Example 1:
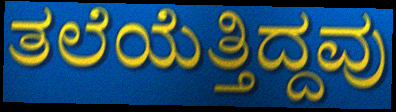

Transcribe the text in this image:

ತಲೆಯೆತ್ತಿದ್ದವು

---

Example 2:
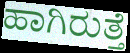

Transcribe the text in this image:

ಹಾಗಿರುತ್ತೆ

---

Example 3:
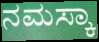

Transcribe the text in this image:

ನಮಸ್ಕಾ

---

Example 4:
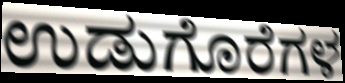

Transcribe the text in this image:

ಉಡುಗೊರೆಗಳ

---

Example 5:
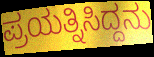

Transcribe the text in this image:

ಪ್ರಯತ್ನಿಸಿದ್ದನು